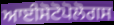
ਆਈਸੋਟੋਪੋਲੋਗਸ